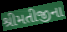
શ્રીમતીજીના